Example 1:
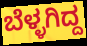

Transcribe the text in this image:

ಬೆಳ್ಳಗಿದ್ದ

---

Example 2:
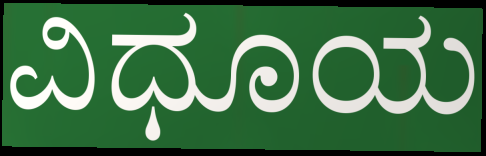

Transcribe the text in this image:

ವಿಧೂಯ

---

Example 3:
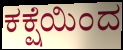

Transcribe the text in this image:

ಕಕ್ಷೆಯಿಂದ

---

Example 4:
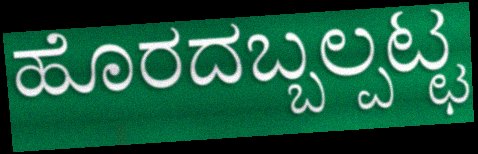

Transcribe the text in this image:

ಹೊರದಬ್ಬಲ್ಪಟ್ಟ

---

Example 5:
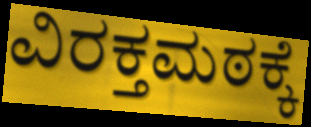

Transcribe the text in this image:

ವಿರಕ್ತಮಠಕ್ಕೆ